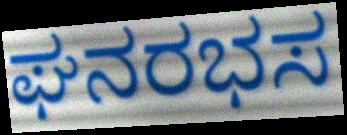
ಘನರಭಸ